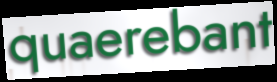
quaerebant